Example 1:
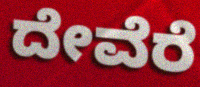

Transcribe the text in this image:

ದೇವೆರೆ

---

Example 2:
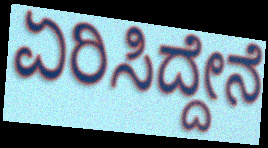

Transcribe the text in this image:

ಏರಿಸಿದ್ದೇನೆ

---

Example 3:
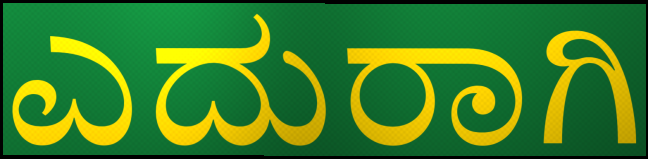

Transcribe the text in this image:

ಎದುರಾಗಿ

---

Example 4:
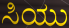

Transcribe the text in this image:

ಸಿಯು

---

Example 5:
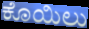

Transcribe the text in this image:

ಕೊಯಿಲು